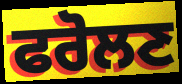
ਫਰੋਲਣ